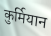
कुर्मियान